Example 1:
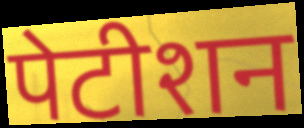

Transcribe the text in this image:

पेटीशन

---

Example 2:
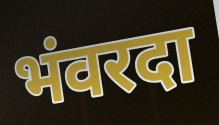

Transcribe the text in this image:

भंवरदा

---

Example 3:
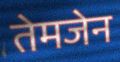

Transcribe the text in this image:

तेमजेन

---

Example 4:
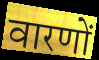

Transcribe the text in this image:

वारणों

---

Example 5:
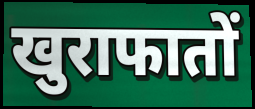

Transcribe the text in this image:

खुराफातों